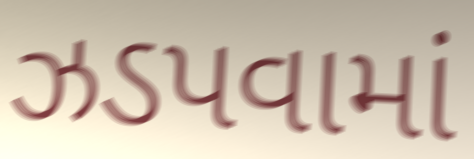
ઝડપવામાં